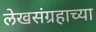
लेखसंग्रहाच्या